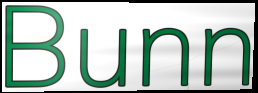
Bunn